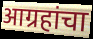
आग्रहांचा